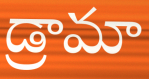
డ్రామా